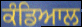
ਕੰਡਿਆਲ